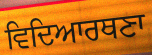
ਵਿਦਿਆਰਥਣਾ